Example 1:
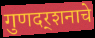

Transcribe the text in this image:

गुणदर्शनाचे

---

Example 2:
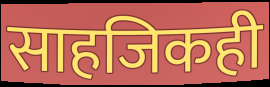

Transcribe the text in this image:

साहजिकही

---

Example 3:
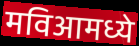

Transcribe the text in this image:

मविआमध्ये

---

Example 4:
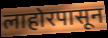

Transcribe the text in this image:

लाहोरपासून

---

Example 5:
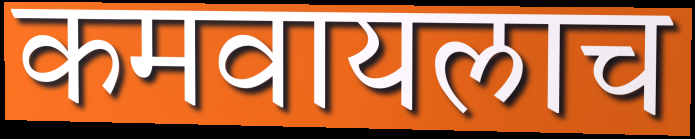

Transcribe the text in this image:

कमवायलाच